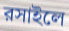
রসাইলে